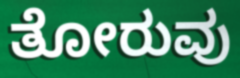
ತೋರುವು